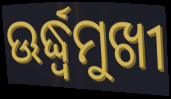
ଊର୍ଦ୍ଧ୍ବମୁଖୀ